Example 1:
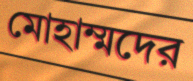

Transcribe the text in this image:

মোহাম্মদের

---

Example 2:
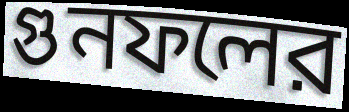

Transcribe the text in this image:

গুনফলের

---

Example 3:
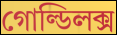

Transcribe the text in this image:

গোল্ডিলক্স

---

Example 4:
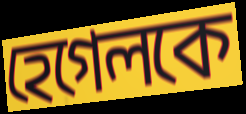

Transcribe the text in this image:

হেগেলকে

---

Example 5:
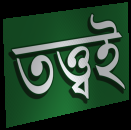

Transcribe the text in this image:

তত্ত্বই